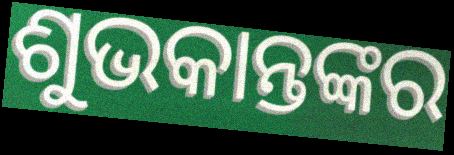
ଶୁଭକାନ୍ତଙ୍କର